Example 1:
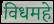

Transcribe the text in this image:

विधमहे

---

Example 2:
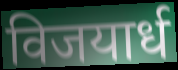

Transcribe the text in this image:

विजयार्ध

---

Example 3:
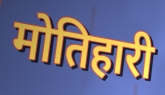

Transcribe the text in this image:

मोतिहारी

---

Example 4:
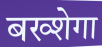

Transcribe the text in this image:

बख्शेगा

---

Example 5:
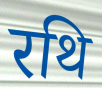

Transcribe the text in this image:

रथि